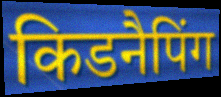
किडनैपिंग